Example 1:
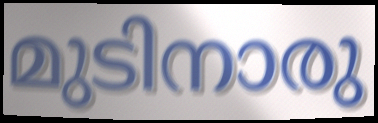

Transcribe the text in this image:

മുടിനാരു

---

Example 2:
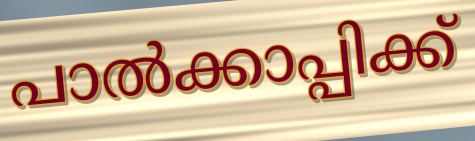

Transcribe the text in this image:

പാൽക്കാപ്പിക്ക്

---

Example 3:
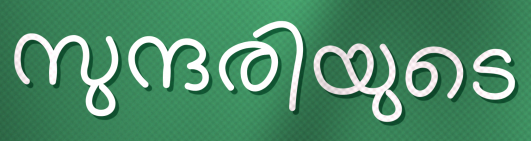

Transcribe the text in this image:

സുന്ദരിയുടെ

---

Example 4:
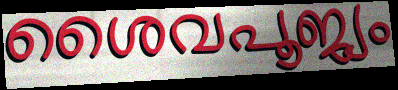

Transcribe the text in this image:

ശൈവപൂജ്യം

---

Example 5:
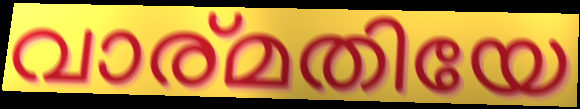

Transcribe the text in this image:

വാര്മതിയേ